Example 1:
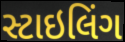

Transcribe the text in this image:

સ્ટાઇલિંગ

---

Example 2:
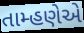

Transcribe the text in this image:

તામ્હણેએ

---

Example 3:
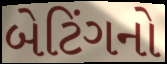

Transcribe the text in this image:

બેટિંગનો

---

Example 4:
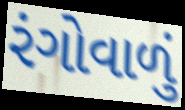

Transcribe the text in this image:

રંગોવાળું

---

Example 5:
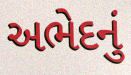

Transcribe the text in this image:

અભેદનું